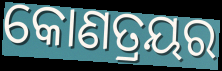
କୋଣତ୍ରୟର